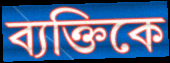
ব্যক্তিকে